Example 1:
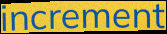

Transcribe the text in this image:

increment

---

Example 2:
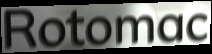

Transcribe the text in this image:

Rotomac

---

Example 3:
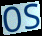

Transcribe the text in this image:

OS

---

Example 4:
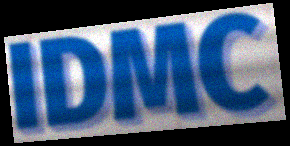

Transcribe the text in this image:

IDMC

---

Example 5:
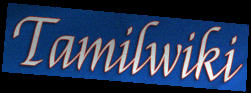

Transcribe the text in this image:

Tamilwiki